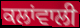
ਕਲਾਂਵਾਲੀ